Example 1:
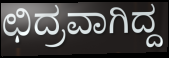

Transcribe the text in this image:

ಛಿದ್ರವಾಗಿದ್ದ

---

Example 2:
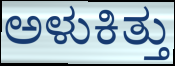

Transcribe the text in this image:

ಅಳುಕಿತ್ತು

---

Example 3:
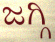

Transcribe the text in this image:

ಜಗ್ಗಿ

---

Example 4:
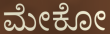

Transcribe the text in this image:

ಮೇಕೋ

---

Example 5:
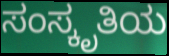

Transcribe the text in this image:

ಸಂಸ್ಕೃತಿಯ